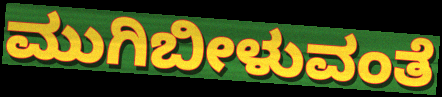
ಮುಗಿಬೀಳುವಂತೆ